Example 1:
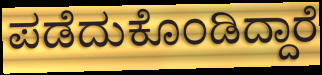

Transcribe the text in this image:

ಪಡೆದುಕೊಂಡಿದ್ದಾರೆ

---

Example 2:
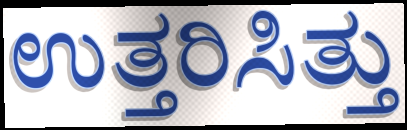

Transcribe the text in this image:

ಉತ್ತರಿಸಿತ್ತು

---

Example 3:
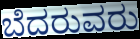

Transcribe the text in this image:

ಬೆದರುವರು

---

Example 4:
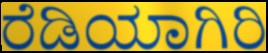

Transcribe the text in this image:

ರೆಡಿಯಾಗಿರಿ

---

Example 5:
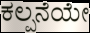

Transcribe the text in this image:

ಕಲ್ಪನೆಯೇ